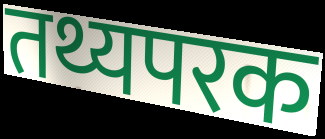
तथ्यपरक